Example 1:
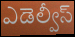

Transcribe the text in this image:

ఎడెల్వీస్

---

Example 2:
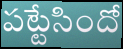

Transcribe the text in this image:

పట్టేసిందో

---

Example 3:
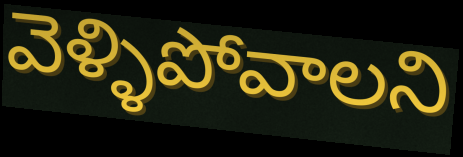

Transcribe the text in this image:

వెళ్ళిపోవాలని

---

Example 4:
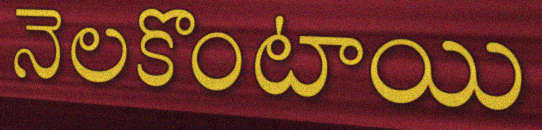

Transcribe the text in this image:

నెలకొంటాయి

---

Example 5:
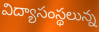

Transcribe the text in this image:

విద్యాసంస్థలున్న